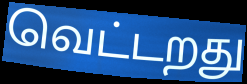
வெட்டறது